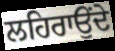
ਲਹਿਰਾਉਂਦੇ